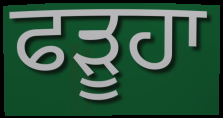
ਫੜੂਹਾ